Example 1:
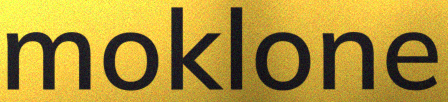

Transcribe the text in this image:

moklone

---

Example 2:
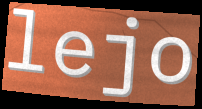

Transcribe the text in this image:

lejo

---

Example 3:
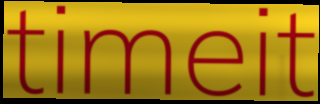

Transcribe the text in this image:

timeit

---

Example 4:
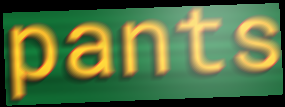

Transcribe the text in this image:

pants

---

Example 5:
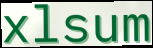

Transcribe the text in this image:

xlsum